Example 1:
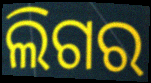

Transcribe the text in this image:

ଲିଗର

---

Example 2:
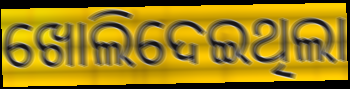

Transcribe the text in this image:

ଖୋଲିଦେଇଥିଲା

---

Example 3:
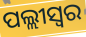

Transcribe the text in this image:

ପଲ୍ଲୀସ୍ଵର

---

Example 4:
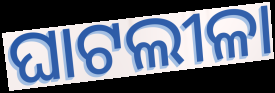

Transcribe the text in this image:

ଘାଟଲୀଳା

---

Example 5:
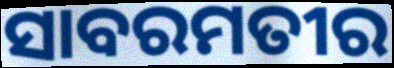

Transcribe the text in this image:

ସାବରମତୀର